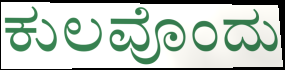
ಕುಲವೊಂದು